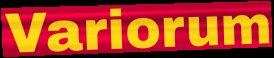
Variorum